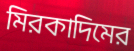
মিরকাদিমের